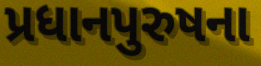
પ્રધાનપુરુષના